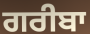
ਗਰੀਬਾ